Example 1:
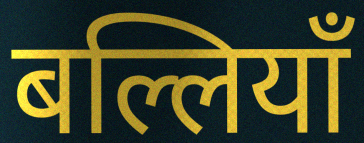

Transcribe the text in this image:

बल्लियाँ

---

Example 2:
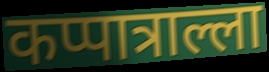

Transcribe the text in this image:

कप्पात्राल्ला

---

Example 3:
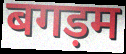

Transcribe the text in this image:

बगड़म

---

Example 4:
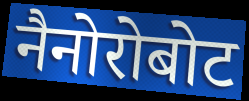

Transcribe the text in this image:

नैनोरोबोट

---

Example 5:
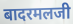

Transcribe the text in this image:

बादरमलजी